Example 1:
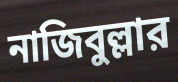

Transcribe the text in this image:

নাজিবুল্লার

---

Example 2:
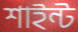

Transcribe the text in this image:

শাইন্ট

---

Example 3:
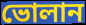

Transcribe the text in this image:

ভোলান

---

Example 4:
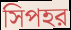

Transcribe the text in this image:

সিপহর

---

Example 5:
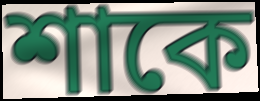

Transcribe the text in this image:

শাকে